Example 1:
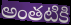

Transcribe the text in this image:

అంతటికి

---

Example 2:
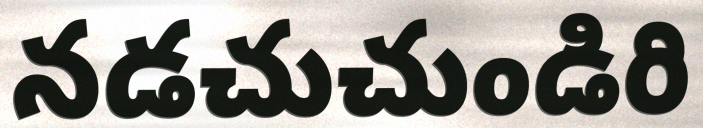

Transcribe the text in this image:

నడచుచుండిరి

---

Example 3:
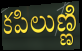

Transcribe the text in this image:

కపిలుణ్ణి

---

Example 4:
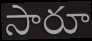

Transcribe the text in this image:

సారూ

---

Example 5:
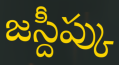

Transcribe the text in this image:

జస్దీప్కు